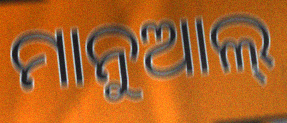
ମାନୁଆଲ୍